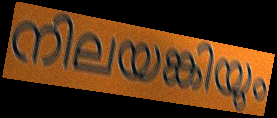
നിലയങ്കിയും